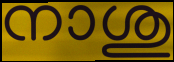
നാശു